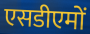
एसडीएमों